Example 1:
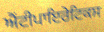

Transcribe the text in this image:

ਐਂਟੀਪਾਇਰੇਟਿਕਸ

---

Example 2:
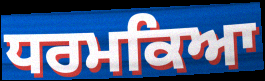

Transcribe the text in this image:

ਧਰਮਕਿਆ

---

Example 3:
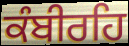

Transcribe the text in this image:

ਕੰਬੀਰਹਿ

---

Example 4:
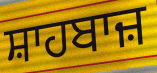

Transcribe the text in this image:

ਸ਼ਾਹਬਾਜ਼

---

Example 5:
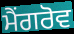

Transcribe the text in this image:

ਮੈਂਗਰੋਵ